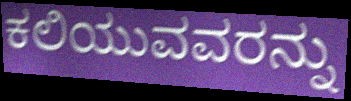
ಕಲಿಯುವವರನ್ನು